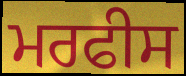
ਮਰਫੀਸ